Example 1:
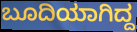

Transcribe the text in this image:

ಬೂದಿಯಾಗಿದ್ದ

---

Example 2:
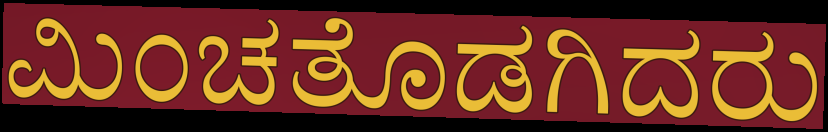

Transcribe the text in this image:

ಮಿಂಚತೊಡಗಿದರು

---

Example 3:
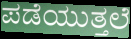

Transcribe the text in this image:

ಪಡೆಯುತ್ತಲೆ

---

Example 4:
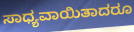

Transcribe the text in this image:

ಸಾಧ್ಯವಾಯಿತಾದರೂ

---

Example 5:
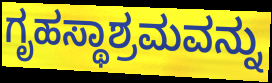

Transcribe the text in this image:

ಗೃಹಸ್ಥಾಶ್ರಮವನ್ನು